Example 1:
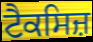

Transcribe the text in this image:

ਟੈਕਸਿਜ਼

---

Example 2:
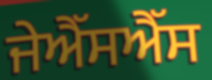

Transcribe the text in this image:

ਜੇਐੱਸਐੱਸ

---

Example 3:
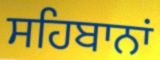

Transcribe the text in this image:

ਸਹਿਬਾਨਾਂ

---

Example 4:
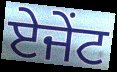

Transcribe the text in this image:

ਏਜੇਂਟ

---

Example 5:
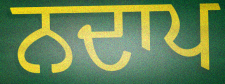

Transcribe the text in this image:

ਨਦਾਪ